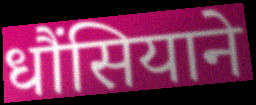
धौंसियाने